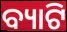
ବ୍ୟାଟି